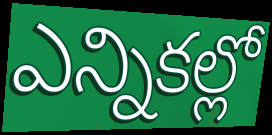
ఎన్నికల్లో